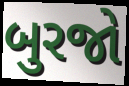
બુરજો